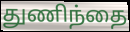
துணிந்தை